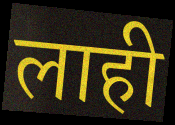
लाही